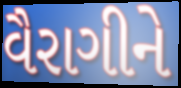
વૈરાગીને